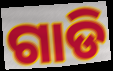
ଗାଡି